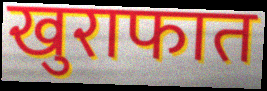
खुराफात